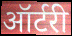
ऑर्टरी